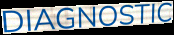
DIAGNOSTIC